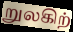
றுலகிற்